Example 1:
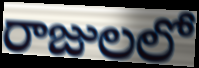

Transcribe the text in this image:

రాజులలో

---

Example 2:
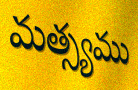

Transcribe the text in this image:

మత్స్యము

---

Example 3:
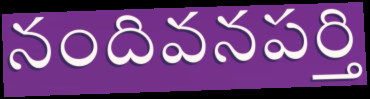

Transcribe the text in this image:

నందివనపర్తి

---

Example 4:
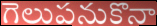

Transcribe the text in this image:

గెలుపనుకొనా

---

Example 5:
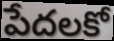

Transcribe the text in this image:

పేదలకో